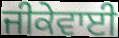
ਜੀਕੇਵਾਈ